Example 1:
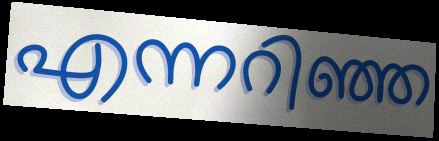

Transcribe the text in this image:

എന്നറിഞ്ഞ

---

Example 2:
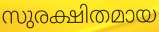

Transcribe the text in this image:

സുരക്ഷിതമായ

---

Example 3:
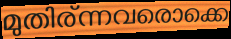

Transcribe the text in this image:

മുതിര്ന്നവരൊക്കെ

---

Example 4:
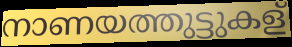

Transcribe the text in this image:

നാണയത്തുട്ടുകള്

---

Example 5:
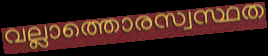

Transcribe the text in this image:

വല്ലാത്തൊരസ്വസ്ഥത